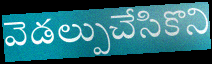
వెడల్పుచేసికొని